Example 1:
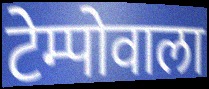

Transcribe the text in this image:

टेम्पोवाला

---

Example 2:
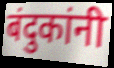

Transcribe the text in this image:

बंदुकांनी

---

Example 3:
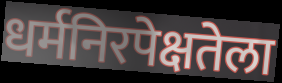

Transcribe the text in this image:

धर्मनिरपेक्षतेला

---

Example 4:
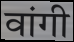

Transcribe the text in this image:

वांगी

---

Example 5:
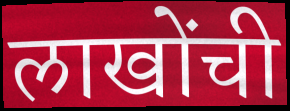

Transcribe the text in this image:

लाखोंची